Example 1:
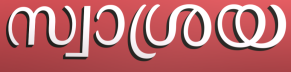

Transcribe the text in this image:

സ്വാശ്രയ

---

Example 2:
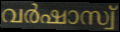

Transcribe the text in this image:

വർഷാസ്വ്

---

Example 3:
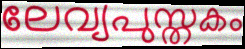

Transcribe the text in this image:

ലേവ്യപുസ്തകം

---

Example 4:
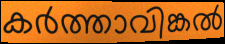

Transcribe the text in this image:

കർത്താവിങ്കൽ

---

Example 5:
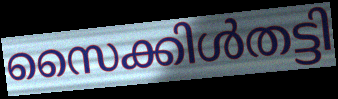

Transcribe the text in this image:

സൈക്കിൾതട്ടി